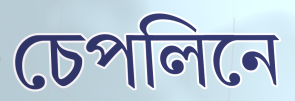
চেপলিনে